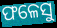
ଫଳେସୁ